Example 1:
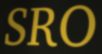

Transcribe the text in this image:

SRO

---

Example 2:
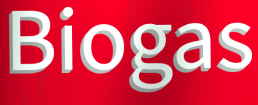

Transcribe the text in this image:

Biogas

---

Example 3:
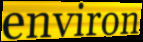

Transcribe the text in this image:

environ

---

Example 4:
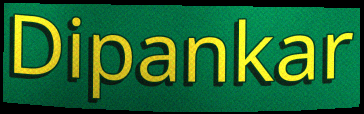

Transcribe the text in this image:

Dipankar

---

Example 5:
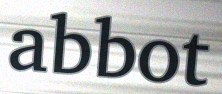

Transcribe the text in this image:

abbot